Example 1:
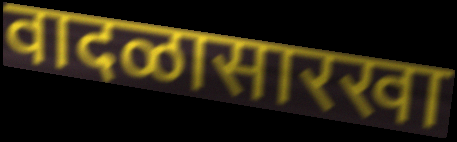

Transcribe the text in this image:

वादळासारखा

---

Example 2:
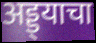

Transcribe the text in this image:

अड्ड्याचा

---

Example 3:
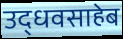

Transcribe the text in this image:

उद्धवसाहेब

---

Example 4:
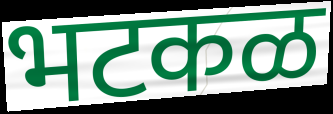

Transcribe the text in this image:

भटकळ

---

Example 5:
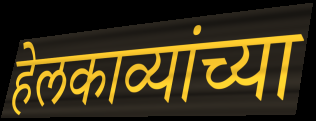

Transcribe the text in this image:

हेलकाव्यांच्या